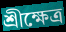
শ্রীক্ষেত্র